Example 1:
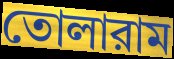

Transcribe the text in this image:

তোলারাম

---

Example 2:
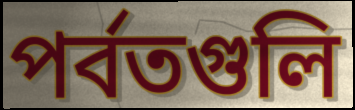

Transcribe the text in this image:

পর্বতগুলি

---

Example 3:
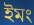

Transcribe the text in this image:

ইমং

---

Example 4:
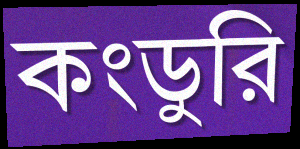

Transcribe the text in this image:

কংডুরি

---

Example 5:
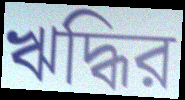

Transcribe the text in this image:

ঋদ্ধির